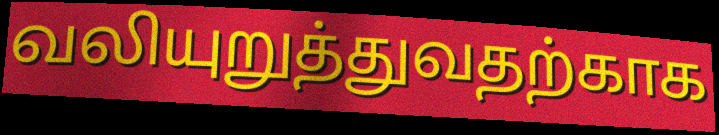
வலியுறுத்துவதற்காக